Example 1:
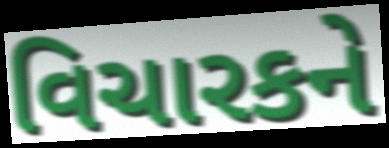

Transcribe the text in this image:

વિચારકને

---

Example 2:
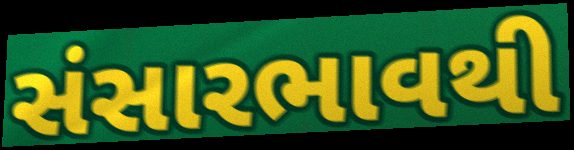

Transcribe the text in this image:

સંસારભાવથી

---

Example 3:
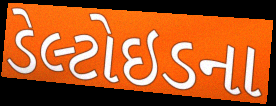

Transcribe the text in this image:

ડેલ્ટોઇડના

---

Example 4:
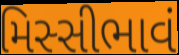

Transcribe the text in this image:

મિસ્સીભાવં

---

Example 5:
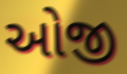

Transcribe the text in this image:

ઓજી